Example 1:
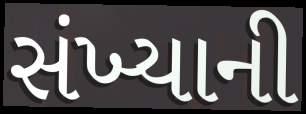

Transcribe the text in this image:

સંખ્યાની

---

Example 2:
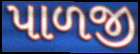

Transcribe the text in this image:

પાળજી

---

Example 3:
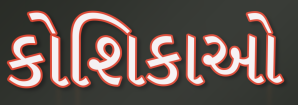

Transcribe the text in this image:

કોશિકાઓ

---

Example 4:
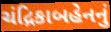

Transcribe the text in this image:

ચંદ્રિકાબહેનનું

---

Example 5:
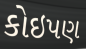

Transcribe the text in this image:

કોઇપણ